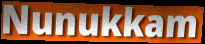
Nunukkam